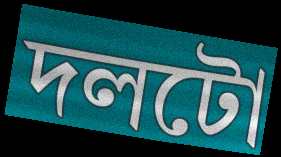
দলটো